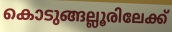
കൊടുങ്ങല്ലൂരിലേക്ക്